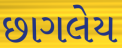
છાગલેય